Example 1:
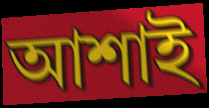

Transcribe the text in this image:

আশাই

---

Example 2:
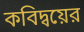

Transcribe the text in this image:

কবিদ্বয়ের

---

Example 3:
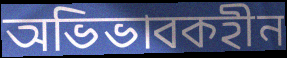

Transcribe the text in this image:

অভিভাবকহীন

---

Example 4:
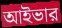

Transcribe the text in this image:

আইভার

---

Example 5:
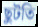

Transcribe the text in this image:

ছুটতি